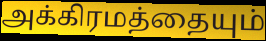
அக்கிரமத்தையும்